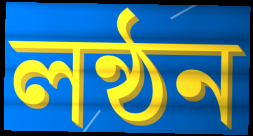
লন্ঠন